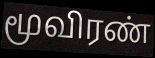
மூவிரண்